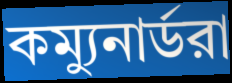
কম্যুনার্ডরা